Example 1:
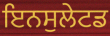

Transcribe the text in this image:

ਇਨਸੁਲੇਟਡ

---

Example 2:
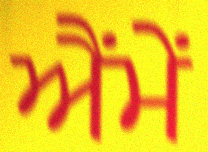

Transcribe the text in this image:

ਐਂਮੇਂ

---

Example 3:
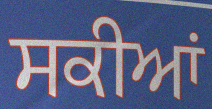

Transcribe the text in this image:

ਸਕੀਆਂ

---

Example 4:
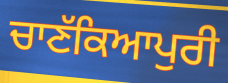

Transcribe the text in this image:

ਚਾਣੱਕਿਆਪੁਰੀ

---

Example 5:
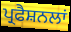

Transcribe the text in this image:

ਪ੍ਰਫੈਸ਼ਨਲਾਂ